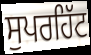
ਸੁਪਰਹਿੱਟ